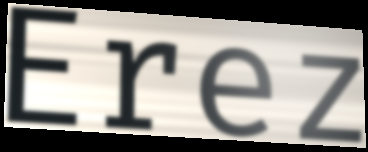
Erez